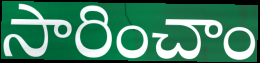
సారించాం